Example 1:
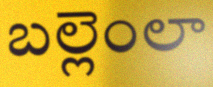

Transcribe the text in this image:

బల్లెంలా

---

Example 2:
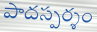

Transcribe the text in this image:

పాదస్పర్శం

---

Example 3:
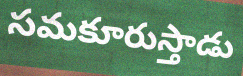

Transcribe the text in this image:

సమకూరుస్తాడు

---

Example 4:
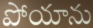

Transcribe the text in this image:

పోయాను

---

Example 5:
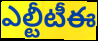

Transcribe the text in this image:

ఎల్టీటీఈ